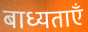
बाध्यताएँ